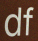
df